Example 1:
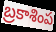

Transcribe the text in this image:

బ్రకాశింప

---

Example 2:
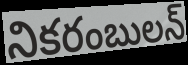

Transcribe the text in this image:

నికరంబులన్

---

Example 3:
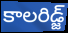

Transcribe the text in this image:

కాలరిడ్జ్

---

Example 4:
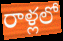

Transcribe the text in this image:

రాళ్లలో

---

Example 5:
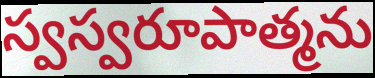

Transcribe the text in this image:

స్వస్వరూపాత్మను